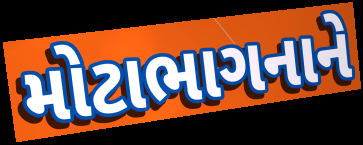
મોટાભાગનાને